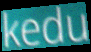
kedu